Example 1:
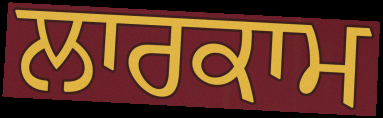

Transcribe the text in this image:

ਲਾਰਕਾਮ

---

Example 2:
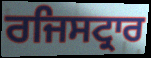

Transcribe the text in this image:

ਰਜਿਸਟ੍ਰਾਰ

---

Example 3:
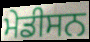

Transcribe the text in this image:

ਮੇਡੀਸਨ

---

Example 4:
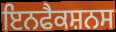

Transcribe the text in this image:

ਇਨਫੈਕਸ਼ਨਸ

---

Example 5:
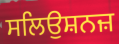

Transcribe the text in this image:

ਸਲਿਉਸ਼ਨਜ਼